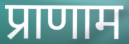
प्राणाम